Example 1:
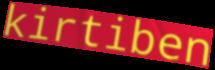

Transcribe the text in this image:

kirtiben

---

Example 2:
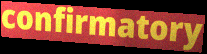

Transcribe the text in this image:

confirmatory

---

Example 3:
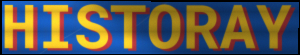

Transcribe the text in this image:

HISTORAY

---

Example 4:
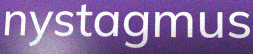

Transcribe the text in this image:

nystagmus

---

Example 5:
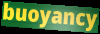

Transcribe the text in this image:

buoyancy